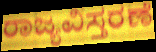
ರಾಜ್ಯವಿಸ್ತರಣೆ